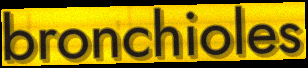
bronchioles